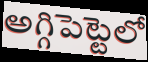
అగ్గిపెట్టెలో